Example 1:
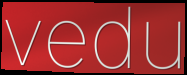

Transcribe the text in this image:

vedu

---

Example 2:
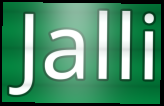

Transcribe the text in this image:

Jalli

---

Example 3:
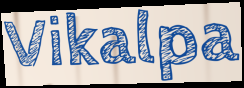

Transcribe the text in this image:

Vikalpa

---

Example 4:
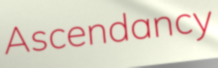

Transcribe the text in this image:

Ascendancy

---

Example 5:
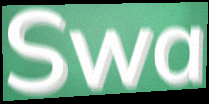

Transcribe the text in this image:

Swa